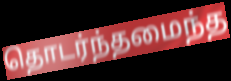
தொடர்ந்தமைந்த